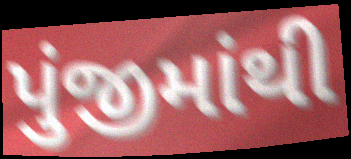
પુંજીમાંથી